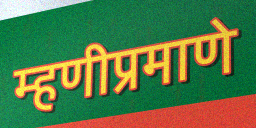
म्हणीप्रमाणे